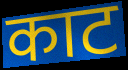
काट